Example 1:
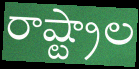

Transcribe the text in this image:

రాష్ట్రాల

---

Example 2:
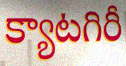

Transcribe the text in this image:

క్యాటగిరీ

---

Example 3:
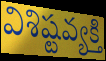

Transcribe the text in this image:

విశిష్టవ్యక్తి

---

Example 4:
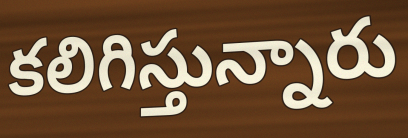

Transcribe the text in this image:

కలిగిస్తున్నారు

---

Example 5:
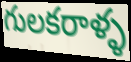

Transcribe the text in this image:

గులకరాళ్ళ